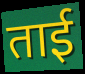
ताई